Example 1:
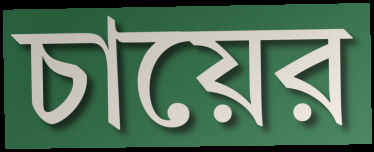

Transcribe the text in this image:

চায়ের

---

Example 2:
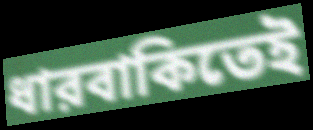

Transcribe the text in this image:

ধারবাকিতেই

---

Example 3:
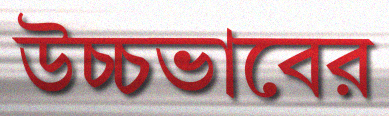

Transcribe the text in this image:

উচ্চভাবের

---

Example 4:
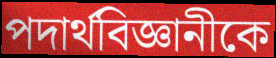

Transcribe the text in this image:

পদার্থবিজ্ঞানীকে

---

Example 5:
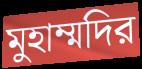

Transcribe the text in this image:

মুহাম্মদির